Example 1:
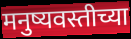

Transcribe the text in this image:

मनुष्यवस्तीच्या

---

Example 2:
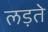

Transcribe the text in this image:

लड़ते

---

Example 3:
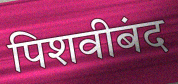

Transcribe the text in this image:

पिशवीबंद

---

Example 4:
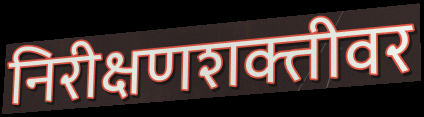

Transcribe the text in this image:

निरीक्षणशक्तीवर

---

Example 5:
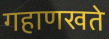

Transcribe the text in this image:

गहाणखते